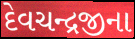
દેવચન્દ્રજીના